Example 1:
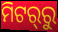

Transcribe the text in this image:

ମିଟର୍‍ରୁ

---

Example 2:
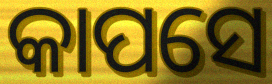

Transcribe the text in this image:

କାପସେ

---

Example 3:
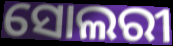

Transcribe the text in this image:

ସୋଲରୀ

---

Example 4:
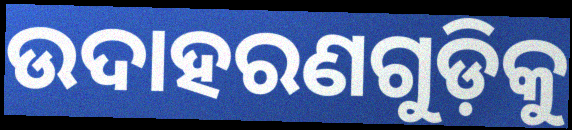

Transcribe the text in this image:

ଉଦାହରଣଗୁଡ଼ିକୁ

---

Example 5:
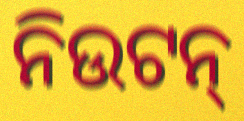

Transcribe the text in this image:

ନିଉଟନ୍